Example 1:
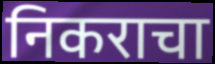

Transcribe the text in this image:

निकराचा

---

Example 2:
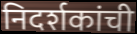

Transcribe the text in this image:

निदर्शकांची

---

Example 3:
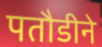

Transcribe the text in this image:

पतौडीने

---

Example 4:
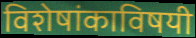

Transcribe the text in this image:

विशेषांकाविषयी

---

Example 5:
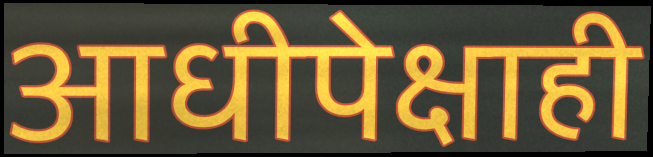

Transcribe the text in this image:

आधीपेक्षाही